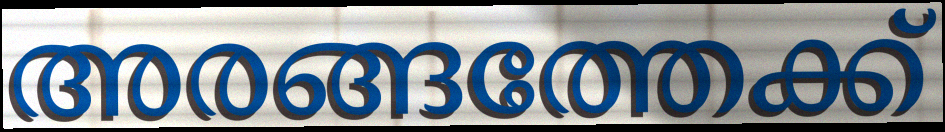
അരങ്ങത്തേക്ക്